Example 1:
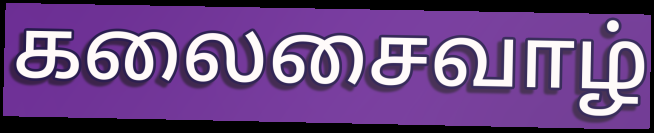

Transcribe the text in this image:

கலைசைவாழ்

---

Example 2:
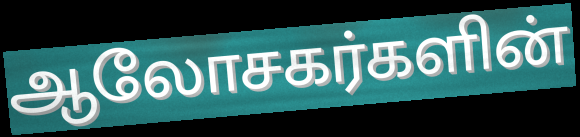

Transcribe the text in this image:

ஆலோசகர்களின்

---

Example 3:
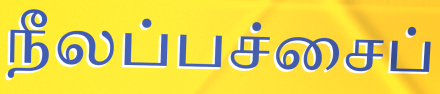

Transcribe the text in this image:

நீலப்பச்சைப்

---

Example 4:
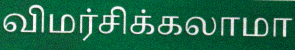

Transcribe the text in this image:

விமர்சிக்கலாமா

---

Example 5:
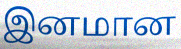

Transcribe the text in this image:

இனமான